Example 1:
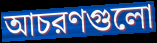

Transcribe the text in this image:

আচরণগুলো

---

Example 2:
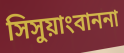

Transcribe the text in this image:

সিসুয়াংবাননা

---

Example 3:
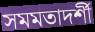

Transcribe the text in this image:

সমমতাদর্শী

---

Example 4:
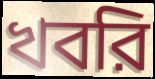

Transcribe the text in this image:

খবরি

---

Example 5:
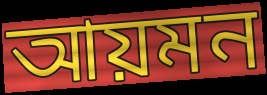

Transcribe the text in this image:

আয়মন